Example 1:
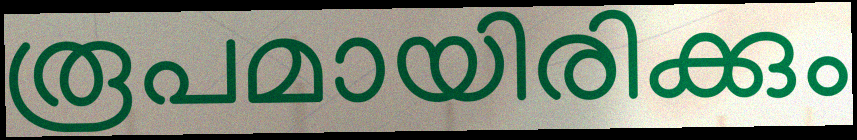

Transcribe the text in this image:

രൂപമായിരിക്കും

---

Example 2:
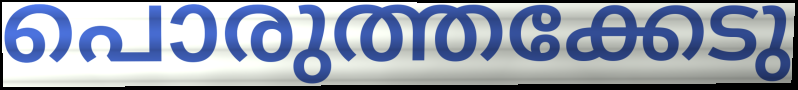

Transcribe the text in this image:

പൊരുത്തക്കേടു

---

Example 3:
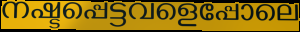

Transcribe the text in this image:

നഷ്ടപ്പെട്ടവളെപ്പോലെ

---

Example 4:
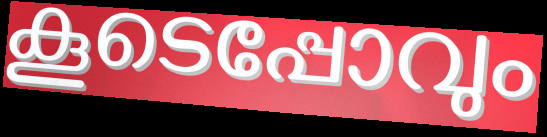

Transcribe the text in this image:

കൂടെപ്പോവും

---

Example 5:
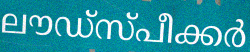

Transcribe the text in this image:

ലൗഡ്സ്പീക്കർ